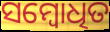
ସମ୍ବୋଧିତ